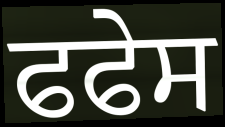
ਫਫੇਸ